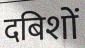
दबिशों